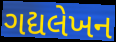
ગદ્યલેખન